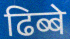
ढिब्बे